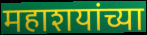
महाशयांच्या